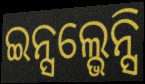
ଇନ୍ସଲ୍ଭେନ୍ସି